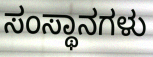
ಸಂಸ್ಥಾನಗಳು